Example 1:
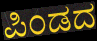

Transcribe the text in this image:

ಪಿಂಡದ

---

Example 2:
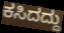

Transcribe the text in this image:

ಕಸಿದದ್ದು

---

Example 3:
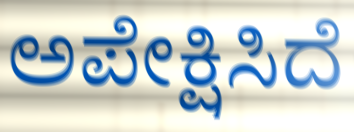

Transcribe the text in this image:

ಅಪೇಕ್ಷಿಸಿದೆ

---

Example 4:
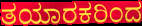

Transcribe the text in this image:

ತಯಾರಕರಿಂದ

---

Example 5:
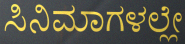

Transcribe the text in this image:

ಸಿನಿಮಾಗಳಲ್ಲೇ